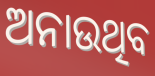
ଅନାଉଥିବ